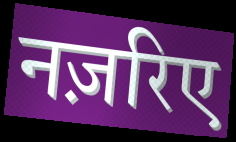
नज़रिए